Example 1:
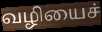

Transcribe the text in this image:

வழியைச்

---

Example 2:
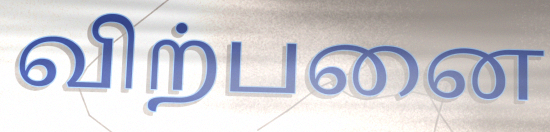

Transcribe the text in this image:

விற்பனை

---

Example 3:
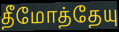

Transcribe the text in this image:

தீமோத்தேயு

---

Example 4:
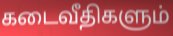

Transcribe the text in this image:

கடைவீதிகளும்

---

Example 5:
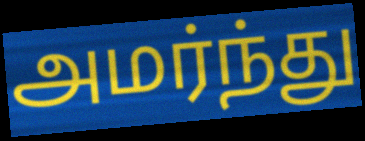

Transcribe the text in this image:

அமர்ந்து